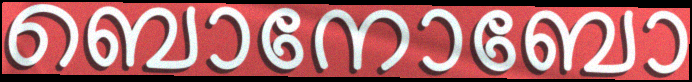
ബൊനോബോ